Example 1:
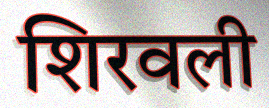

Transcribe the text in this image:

शिरवली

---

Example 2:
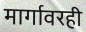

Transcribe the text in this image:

मार्गावरही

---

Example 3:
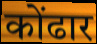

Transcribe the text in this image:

कोंढार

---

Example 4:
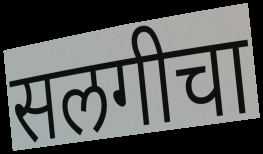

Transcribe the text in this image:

सलगीचा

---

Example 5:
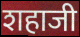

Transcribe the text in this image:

शहाजी